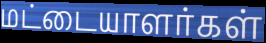
மட்டையாளர்கள்